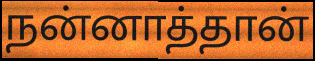
நன்னாத்தான்